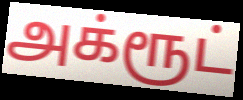
அக்ரூட்